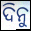
ଦିନୁ